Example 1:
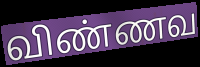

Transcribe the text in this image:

விண்ணவ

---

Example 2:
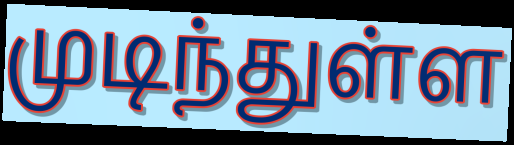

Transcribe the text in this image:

முடிந்துள்ள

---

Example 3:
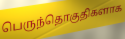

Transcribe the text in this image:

பெருந்தொகுதிகளாக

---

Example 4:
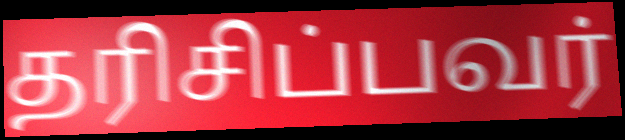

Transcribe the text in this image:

தரிசிப்பவர்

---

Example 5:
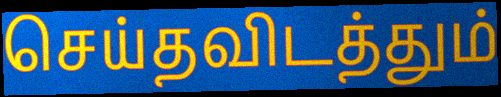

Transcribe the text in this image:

செய்தவிடத்தும்